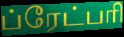
ப்ரேட்பரி